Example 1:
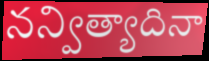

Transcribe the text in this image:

నన్విత్యాదినా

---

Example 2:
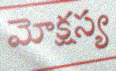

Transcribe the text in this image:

మోక్షస్య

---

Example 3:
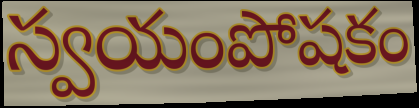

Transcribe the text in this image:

స్వయంపోషకం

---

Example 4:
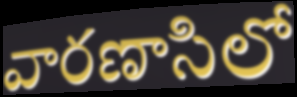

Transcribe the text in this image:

వారణాసిలో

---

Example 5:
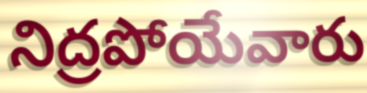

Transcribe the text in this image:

నిద్రపోయేవారు